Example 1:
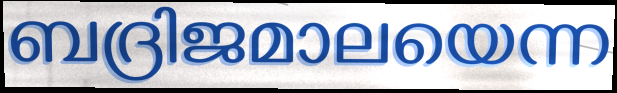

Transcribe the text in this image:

ബദ്രിജമാലയെന്ന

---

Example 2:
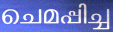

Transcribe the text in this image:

ചെമപ്പിച്ച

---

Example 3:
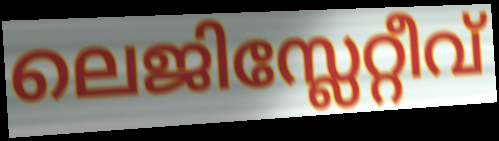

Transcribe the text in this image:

ലെജിസ്ലേറ്റീവ്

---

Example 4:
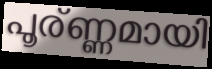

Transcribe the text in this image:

പൂര്ണ്ണമായി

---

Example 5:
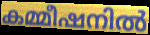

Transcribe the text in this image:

കമ്മീഷനിൽ